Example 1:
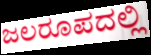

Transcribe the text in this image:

ಜಲರೂಪದಲ್ಲಿ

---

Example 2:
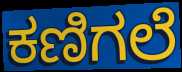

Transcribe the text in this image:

ಕಣಿಗಲೆ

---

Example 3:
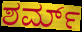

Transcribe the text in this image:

ಶರ್ಮ್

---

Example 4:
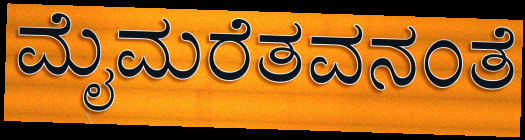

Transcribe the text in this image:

ಮೈಮರೆತವನಂತೆ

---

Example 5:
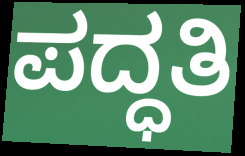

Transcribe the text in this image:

ಪದ್ಧತಿ